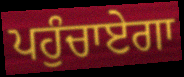
ਪਹੁੰਚਾਏਗਾ